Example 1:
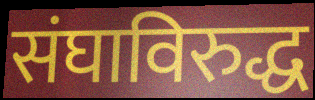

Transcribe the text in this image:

संघाविरुद्ध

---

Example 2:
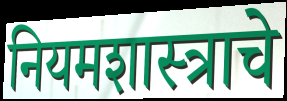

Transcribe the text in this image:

नियमशास्त्राचे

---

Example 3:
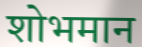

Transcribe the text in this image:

शोभमान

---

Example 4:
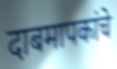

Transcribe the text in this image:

दाबमापकांचे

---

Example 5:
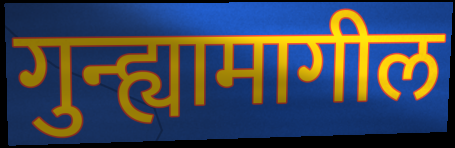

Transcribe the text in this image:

गुन्ह्यामागील